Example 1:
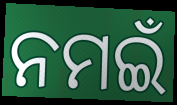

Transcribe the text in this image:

ନମଇଁ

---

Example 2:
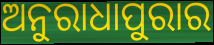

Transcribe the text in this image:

ଅନୁରାଧାପୁରାର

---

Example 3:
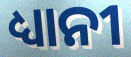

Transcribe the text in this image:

ଧ୍ୟାନୀ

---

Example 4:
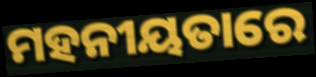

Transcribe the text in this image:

ମହନୀୟତାରେ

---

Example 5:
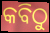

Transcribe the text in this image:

କବିଠୁ